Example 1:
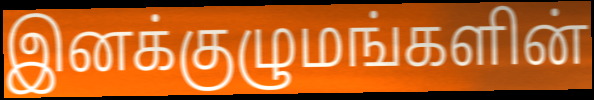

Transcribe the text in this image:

இனக்குழுமங்களின்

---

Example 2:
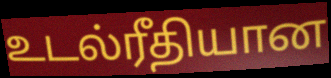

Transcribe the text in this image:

உடல்ரீதியான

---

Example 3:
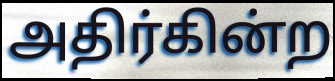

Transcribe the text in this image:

அதிர்கின்ற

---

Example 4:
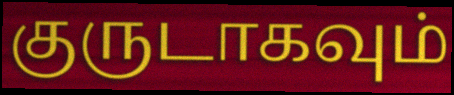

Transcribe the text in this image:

குருடாகவும்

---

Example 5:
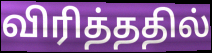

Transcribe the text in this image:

விரித்ததில்